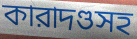
কারাদণ্ডসহ